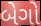
બેગો